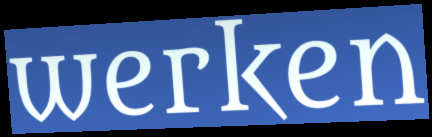
werken